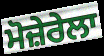
ਮੋਜ਼ੇਰੇਲਾ